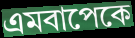
এমবাপেকে